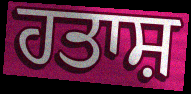
ਹਤਾਸ਼